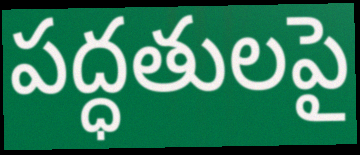
పద్ధతులపై